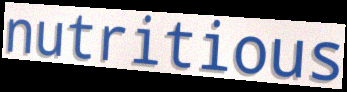
nutritious